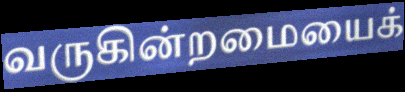
வருகின்றமையைக்